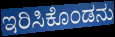
ಇರಿಸಿಕೊಂಡನು